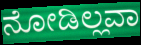
ನೋಡಿಲ್ಲವಾ